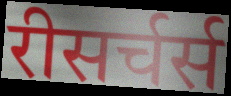
रीसर्चर्स